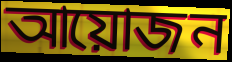
আয়োজন